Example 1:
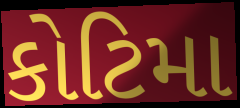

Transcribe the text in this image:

કોટિમા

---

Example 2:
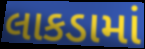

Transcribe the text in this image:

લાકડામાં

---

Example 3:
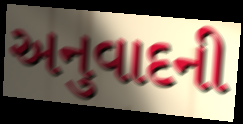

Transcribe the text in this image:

અનુવાદની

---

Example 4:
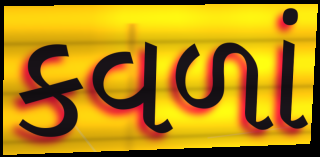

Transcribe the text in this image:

કવળાં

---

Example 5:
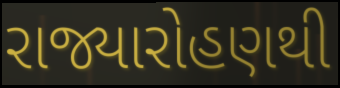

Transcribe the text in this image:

રાજ્યારોહણથી